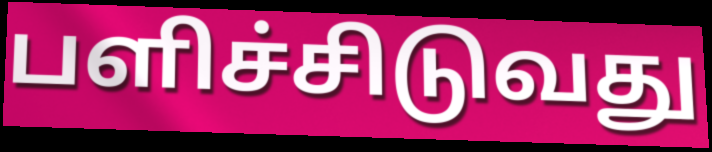
பளிச்சிடுவது